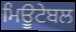
ਮਿਊਟੇਬਲ